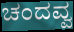
ಚಂದವ್ವ